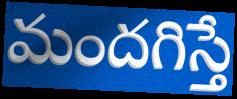
మందగిస్తే